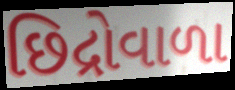
છિદ્રોવાળા